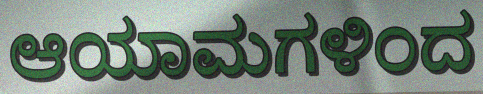
ಆಯಾಮಗಳಿಂದ